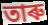
তাৰু